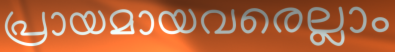
പ്രായമായവരെല്ലാം